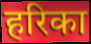
हरिका